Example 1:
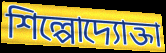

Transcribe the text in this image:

শিল্পোদ্যোক্তা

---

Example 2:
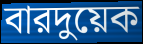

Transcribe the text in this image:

বারদুয়েক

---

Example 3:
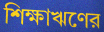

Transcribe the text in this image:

শিক্ষাঋণের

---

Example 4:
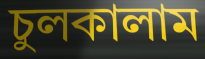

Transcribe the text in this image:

চুলকালাম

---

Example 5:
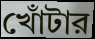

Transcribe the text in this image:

খোঁটার